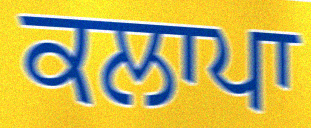
ਕਲਾਪਾ